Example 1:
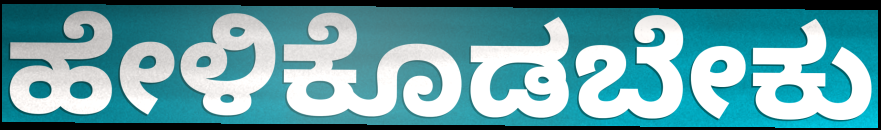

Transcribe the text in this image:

ಹೇಳಿಕೊಡಬೇಕು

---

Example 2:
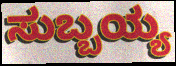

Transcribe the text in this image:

ಸುಬ್ಬಯ್ಯ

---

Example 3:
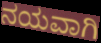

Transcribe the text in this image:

ನಯವಾಗಿ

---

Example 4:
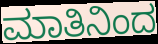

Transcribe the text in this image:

ಮಾತಿನಿಂದ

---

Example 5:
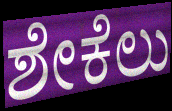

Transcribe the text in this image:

ಶೇಕೆಲು